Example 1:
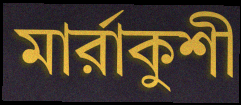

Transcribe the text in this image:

মার্রাকুশী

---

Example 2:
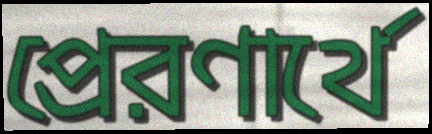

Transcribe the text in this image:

প্রেরণার্থে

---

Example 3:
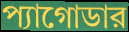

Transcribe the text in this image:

প্যাগোডার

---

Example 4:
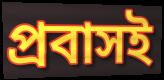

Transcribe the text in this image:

প্রবাসই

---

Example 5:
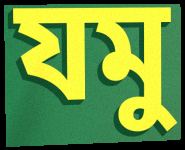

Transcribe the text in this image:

যমু